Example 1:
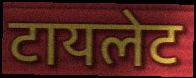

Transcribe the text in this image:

टायलेट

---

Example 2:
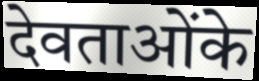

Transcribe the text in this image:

देवताओंके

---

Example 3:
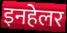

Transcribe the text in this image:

इनहेलर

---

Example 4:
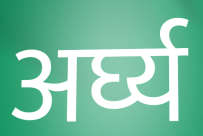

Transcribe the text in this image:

अर्घ्य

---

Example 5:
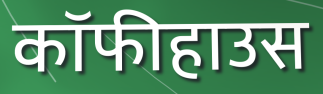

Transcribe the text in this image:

कॉफीहाउस